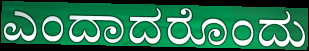
ಎಂದಾದರೊಂದು